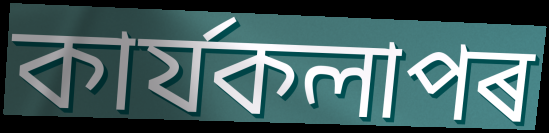
কাৰ্যকলাপৰ